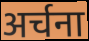
अर्चना